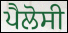
ਪੈਲੋਸੀ